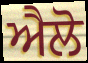
ਐਲੋ